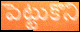
పెట్టుకొని